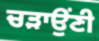
ਚੜਾਉਂਣੀ